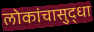
लोकांचासुद्धा